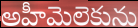
అహీమెలెకును